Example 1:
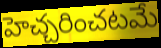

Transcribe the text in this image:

హెచ్చరించటమే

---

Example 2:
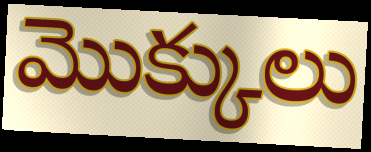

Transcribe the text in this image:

మొక్కులు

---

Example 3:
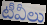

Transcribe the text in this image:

టీవీలు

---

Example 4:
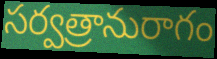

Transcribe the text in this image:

సర్వత్రానురాగం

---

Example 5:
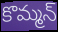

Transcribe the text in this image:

కొమ్మన్